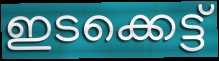
ഇടക്കെട്ട്